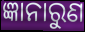
ଜ୍ଞାନାରୁଣ